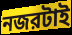
নজরটাই